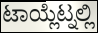
ಟಾಯ್ಲೆಟ್ನಲ್ಲಿ